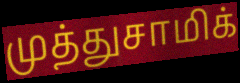
முத்துசாமிக்